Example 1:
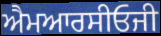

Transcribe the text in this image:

ਐਮਆਰਸੀਓਜੀ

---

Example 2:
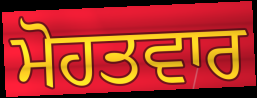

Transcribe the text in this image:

ਮੋਹਤਵਾਰ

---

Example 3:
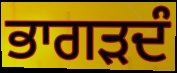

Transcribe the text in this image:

ਭਾਗੜਦੰ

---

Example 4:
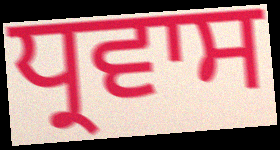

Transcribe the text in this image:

ਧ੍ਰਵਾਸ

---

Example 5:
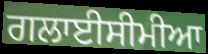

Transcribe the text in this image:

ਗਲਾਈਸੀਮੀਆ